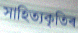
সাহিত্যকৃতিৰ